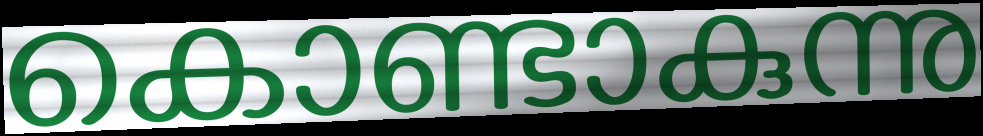
കൊണ്ടാകുന്നു